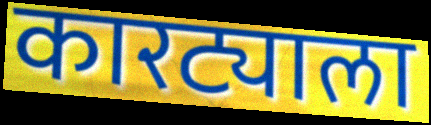
कारट्याला